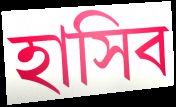
হাসিব